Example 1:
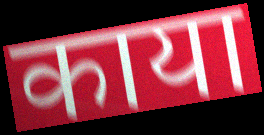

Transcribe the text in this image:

काया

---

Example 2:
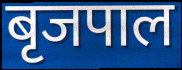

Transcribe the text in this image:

बृजपाल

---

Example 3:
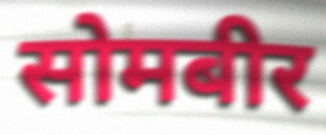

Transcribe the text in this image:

सोमबीर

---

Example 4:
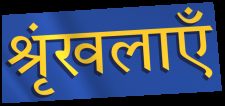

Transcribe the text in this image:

श्रृंखलाएँ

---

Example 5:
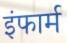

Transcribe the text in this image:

इंफार्म